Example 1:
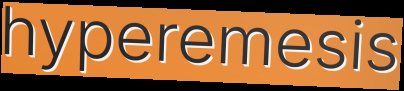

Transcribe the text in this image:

hyperemesis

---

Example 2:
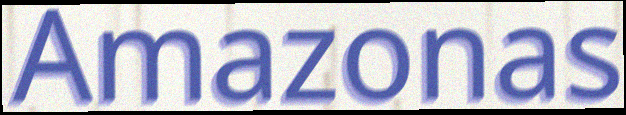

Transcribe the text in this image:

Amazonas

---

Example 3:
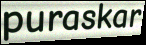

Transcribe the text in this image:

puraskar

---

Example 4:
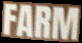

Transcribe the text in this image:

FARM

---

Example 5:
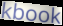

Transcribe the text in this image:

kbook